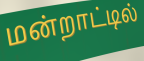
மன்றாட்டில்